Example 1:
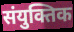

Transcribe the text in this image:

संयुक्तिक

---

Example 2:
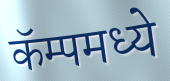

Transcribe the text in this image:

कॅम्पमध्ये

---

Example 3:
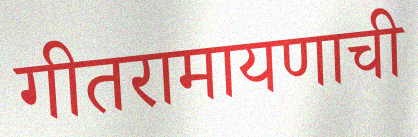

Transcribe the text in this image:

गीतरामायणाची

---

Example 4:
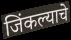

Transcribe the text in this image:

जिंकल्याचे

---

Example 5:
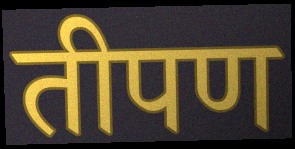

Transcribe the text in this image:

तीपण